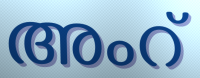
അംറ്